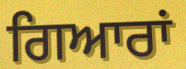
ਗਿਆਰਾਂ